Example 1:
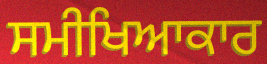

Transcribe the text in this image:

ਸਮੀਖਿਆਕਾਰ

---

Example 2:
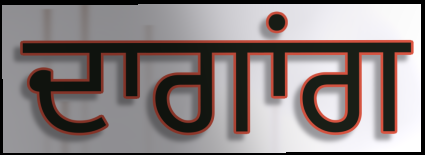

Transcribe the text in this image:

ਦਾਗਾਂਗ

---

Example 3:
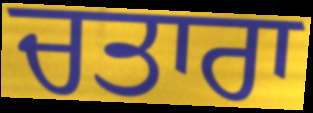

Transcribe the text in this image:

ਚਤਾਰਾ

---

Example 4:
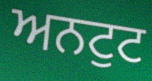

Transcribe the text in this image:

ਅਨਟੁਟ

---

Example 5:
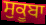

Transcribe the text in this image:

ਸੁਕੂਬਾ